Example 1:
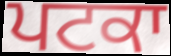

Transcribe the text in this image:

ਪਟਕਾ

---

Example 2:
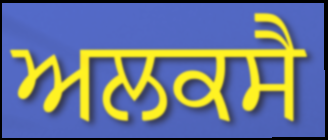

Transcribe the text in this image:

ਅਲਕਸੈ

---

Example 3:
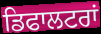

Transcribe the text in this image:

ਡਿਫਾਲਟਰਾਂ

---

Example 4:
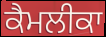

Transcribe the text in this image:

ਕੈਮਲੀਕਾ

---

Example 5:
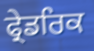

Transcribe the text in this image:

ਫ੍ਰੇਡਰਿਕ